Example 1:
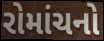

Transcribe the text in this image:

રોમાંચનો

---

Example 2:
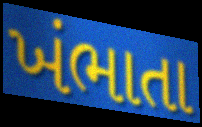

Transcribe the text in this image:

ખંભાતા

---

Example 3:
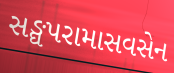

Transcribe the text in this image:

સઙ્ઘપરામાસવસેન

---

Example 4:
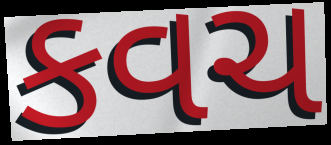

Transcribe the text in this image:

કવચ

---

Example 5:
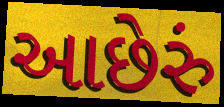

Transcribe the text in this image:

આછેરું